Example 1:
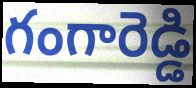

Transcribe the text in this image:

గంగారెడ్డి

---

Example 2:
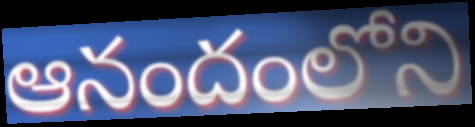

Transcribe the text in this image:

ఆనందంలోని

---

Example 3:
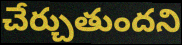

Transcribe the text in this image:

చేర్చుతుందని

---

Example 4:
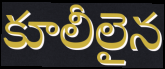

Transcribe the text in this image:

కూలీలైన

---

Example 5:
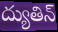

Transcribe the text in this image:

ద్యుతిన్